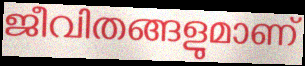
ജീവിതങ്ങളുമാണ്